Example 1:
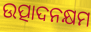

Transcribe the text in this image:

ଉତ୍ପାଦନକ୍ଷମ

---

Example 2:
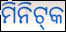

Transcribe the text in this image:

ମିନିଟ୍‌କ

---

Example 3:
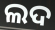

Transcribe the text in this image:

ଲଦ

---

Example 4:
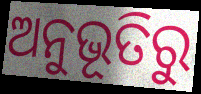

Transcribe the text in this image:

ଅନୁଭୂତିରୁ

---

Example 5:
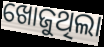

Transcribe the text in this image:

ଖୋଜୁଥିଲା